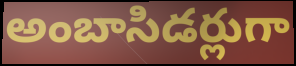
అంబాసిడర్లుగా